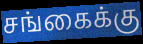
சங்கைக்கு